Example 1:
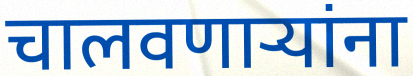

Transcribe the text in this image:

चालवणार्‍यांना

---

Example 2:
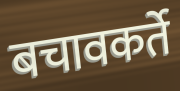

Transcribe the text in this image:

बचावकर्ते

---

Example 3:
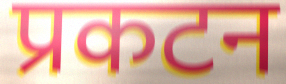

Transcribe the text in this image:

प्रकटन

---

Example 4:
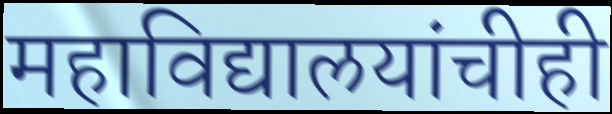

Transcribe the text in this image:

महाविद्यालयांचीही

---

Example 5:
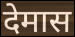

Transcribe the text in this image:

देमास